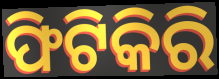
ଫିଟିକିରି